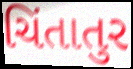
ચિંતાતુર